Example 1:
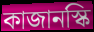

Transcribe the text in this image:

কাজানস্কি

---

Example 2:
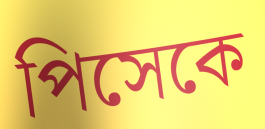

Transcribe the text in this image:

পিসেকে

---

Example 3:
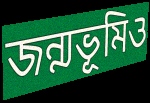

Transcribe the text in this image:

জন্মভূমিও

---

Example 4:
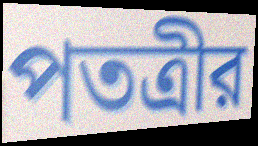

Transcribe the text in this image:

পতত্রীর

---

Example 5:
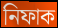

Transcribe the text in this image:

নিফাক